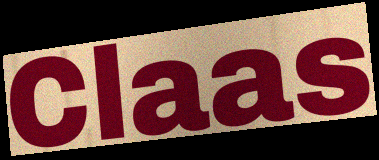
Claas